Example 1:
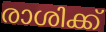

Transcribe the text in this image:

രാശിക്ക്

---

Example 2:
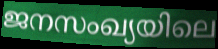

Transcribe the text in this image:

ജനസംഖ്യയിലെ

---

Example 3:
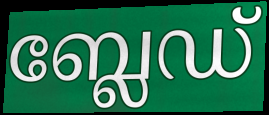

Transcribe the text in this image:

ബ്ലേഡ്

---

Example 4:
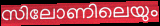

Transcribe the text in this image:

സിലോണിലെയും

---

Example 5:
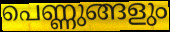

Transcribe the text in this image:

പെണ്ണുങ്ങളും